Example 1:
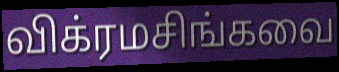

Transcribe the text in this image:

விக்ரமசிங்கவை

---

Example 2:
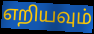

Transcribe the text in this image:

எறியவும்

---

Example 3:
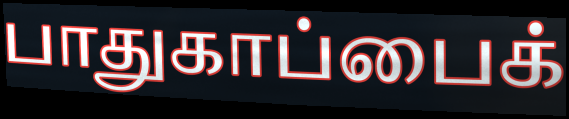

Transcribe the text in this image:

பாதுகாப்பைக்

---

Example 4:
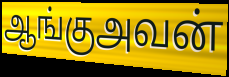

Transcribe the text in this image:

ஆங்குஅவன்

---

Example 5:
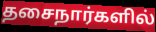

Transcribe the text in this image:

தசைநார்களில்